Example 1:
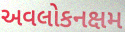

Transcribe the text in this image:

અવલોકનક્ષમ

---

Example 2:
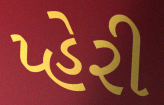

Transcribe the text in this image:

પ્હેરી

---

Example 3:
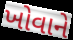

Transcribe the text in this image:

ખોવાને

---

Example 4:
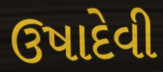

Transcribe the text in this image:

ઉષાદેવી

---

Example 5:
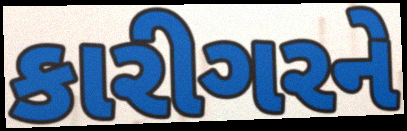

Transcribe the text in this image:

કારીગરને